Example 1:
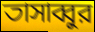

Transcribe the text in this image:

তাসাব্বুর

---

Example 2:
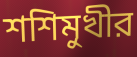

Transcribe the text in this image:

শশিমুখীর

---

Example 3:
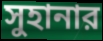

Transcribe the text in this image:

সুহানার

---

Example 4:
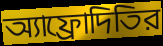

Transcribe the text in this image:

অ্যাফ্রোদিতির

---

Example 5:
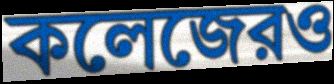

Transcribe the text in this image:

কলেজেরও